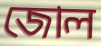
জোল